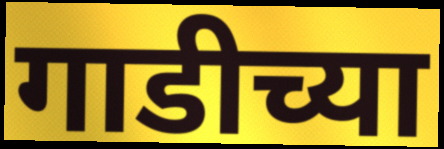
गाडीच्या